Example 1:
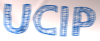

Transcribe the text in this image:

UCIP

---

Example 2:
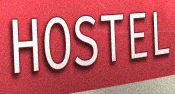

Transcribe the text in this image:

HOSTEL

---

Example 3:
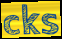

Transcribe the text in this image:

cks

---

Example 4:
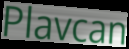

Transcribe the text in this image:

Plavcan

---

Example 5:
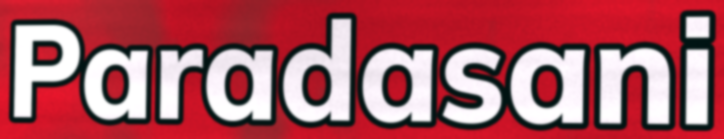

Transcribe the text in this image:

Paradasani